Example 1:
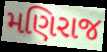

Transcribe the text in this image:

મણિરાજ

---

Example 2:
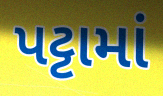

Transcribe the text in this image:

પટ્ટામાં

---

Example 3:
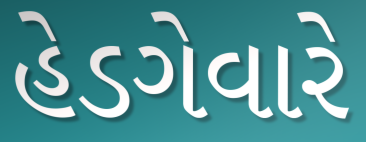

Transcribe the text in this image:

હેડગેવારે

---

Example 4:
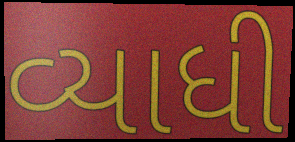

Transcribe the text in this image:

વ્યાધી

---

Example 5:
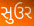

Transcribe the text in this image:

સુઉર